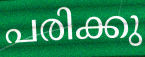
പരിക്കു